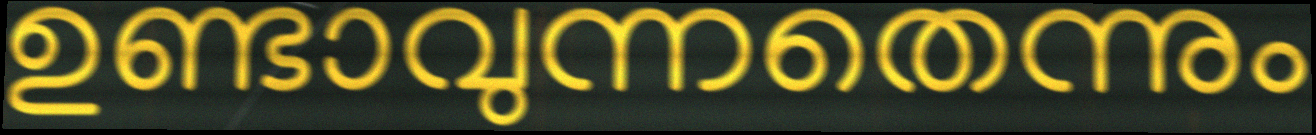
ഉണ്ടാവുന്നതെന്നും